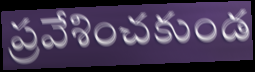
ప్రవేశించకుండ